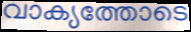
വാക്യത്തോടെ